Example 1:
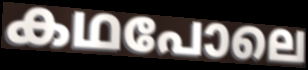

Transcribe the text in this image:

കഥപോലെ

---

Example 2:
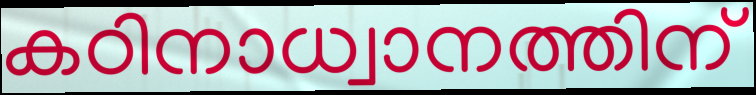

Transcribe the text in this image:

കഠിനാധ്വാനത്തിന്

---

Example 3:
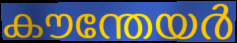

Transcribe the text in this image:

കൗന്തേയർ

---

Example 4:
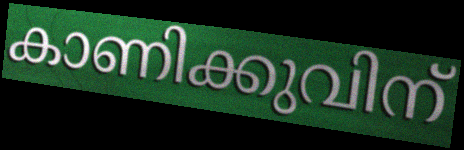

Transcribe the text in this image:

കാണിക്കുവിന്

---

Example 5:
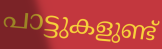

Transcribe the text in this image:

പാട്ടുകളുണ്ട്